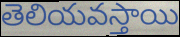
తెలియవస్తాయి